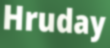
Hruday